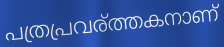
പത്രപ്രവര്ത്തകനാണ്